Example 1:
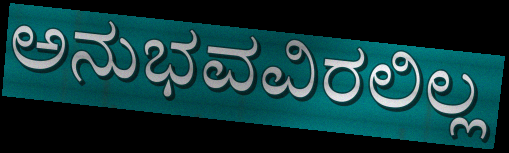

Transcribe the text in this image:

ಅನುಭವವಿರಲಿಲ್ಲ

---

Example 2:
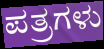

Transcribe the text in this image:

ಪತ್ರಗಳು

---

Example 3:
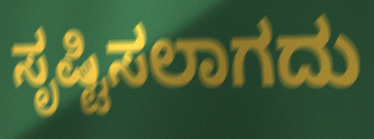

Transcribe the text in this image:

ಸೃಷ್ಟಿಸಲಾಗದು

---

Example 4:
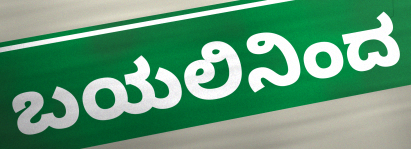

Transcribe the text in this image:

ಬಯಲಿನಿಂದ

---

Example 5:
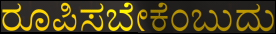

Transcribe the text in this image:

ರೂಪಿಸಬೇಕೆಂಬುದು